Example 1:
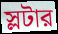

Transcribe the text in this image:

স্লটার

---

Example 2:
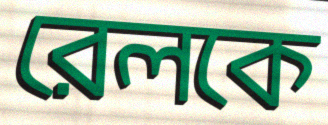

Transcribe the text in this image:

রেলকে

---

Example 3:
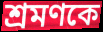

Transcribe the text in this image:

শ্রমণকে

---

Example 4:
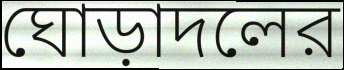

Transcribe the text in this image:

ঘোড়াদলের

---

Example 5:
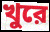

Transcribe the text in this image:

খুরে